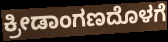
ಕ್ರೀಡಾಂಗಣದೊಳಗೆ